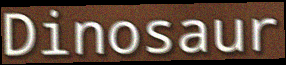
Dinosaur